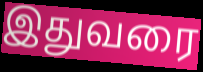
இதுவரை